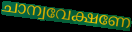
ചാന്വവേക്ഷണേ